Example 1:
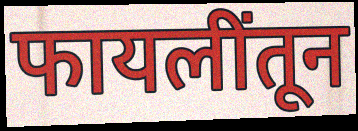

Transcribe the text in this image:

फायलींतून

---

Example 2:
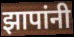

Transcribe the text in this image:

झापांनी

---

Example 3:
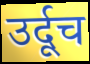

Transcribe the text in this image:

उर्दूच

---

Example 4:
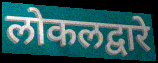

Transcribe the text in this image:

लोकलद्वारे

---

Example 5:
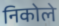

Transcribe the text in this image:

निकोले